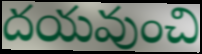
దయవుంచి